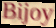
Bijoy